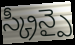
స్క్రీన్పై